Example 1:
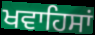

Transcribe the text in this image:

ਖਵਾਹਿਸਾਂ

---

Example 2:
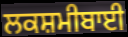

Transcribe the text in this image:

ਲਕਸ਼ਮੀਬਾਈ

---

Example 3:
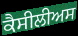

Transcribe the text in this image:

ਕੈਸੀਲੀਅਸ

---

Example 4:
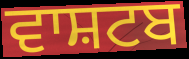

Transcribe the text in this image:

ਵਾਸ਼ਟਬ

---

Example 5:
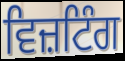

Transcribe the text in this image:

ਵਿਜ਼ਟਿੰਗ